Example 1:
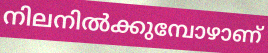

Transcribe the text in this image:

നിലനിൽക്കുമ്പോഴാണ്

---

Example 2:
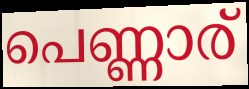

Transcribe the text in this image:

പെണ്ണാര്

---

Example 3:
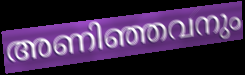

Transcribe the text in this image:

അണിഞ്ഞവനും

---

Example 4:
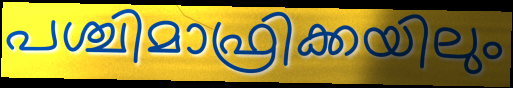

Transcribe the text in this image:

പശ്ചിമാഫ്രിക്കയിലും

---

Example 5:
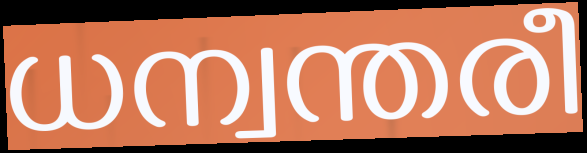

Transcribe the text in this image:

ധന്വന്തരീ